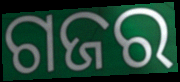
ଗଜର